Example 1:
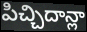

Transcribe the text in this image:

పిచ్చిదాన్లా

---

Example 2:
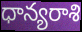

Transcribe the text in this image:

ధాన్యరాశి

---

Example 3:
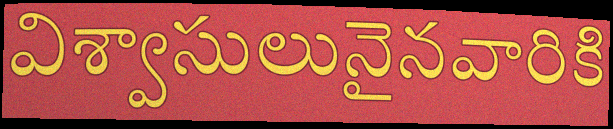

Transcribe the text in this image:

విశ్వాసులునైనవారికి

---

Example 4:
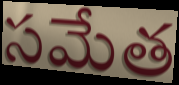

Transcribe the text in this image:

సమేత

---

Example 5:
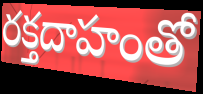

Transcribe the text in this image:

రక్తదాహంతో